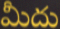
మీదు